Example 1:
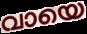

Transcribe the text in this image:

വായെ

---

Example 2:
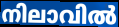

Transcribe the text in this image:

നിലാവിൽ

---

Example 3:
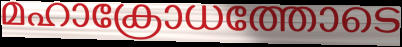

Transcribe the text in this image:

മഹാക്രോധത്തോടെ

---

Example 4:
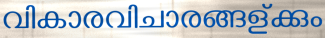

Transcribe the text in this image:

വികാരവിചാരങ്ങള്ക്കും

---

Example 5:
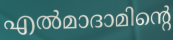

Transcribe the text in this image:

എൽമാദാമിന്റെ